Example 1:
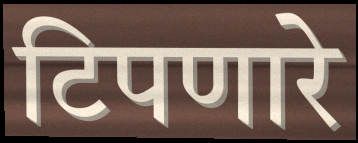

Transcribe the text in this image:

टिपणारे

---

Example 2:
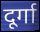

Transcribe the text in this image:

दूर्गा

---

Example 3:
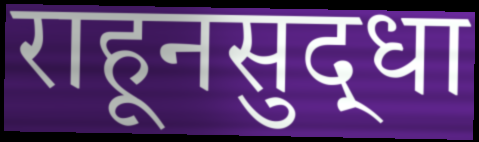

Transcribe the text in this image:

राहूनसुद्धा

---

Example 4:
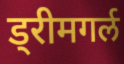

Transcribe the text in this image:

ड्रीमगर्ल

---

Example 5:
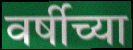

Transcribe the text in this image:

वर्षीच्या